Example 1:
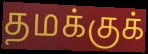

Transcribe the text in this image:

தமக்குக்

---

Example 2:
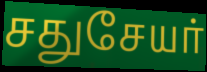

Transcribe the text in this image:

சதுசேயர்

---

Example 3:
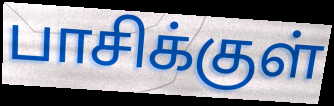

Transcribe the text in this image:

பாசிக்குள்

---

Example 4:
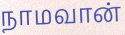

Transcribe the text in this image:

நாமவான்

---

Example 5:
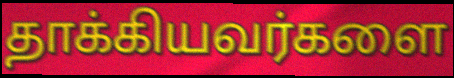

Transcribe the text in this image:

தாக்கியவர்களை